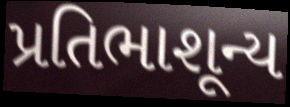
પ્રતિભાશૂન્ય